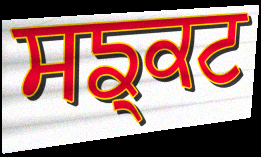
ਸਙ੍ਕਟ